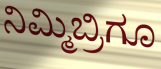
ನಿಮ್ಮಿಬ್ರಿಗೂ